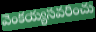
వెంకయ్యసవరించు